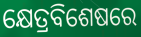
କ୍ଷେତ୍ରବିଶେଷରେ